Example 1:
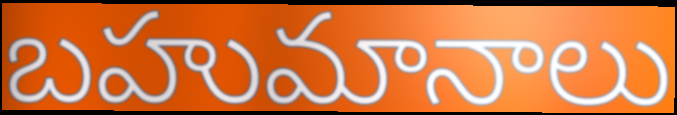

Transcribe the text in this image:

బహుమానాలు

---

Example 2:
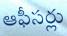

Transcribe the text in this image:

ఆఫీసర్లు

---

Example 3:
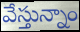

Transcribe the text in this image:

వేస్తున్నాం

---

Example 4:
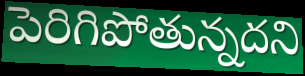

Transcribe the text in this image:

పెరిగిపోతున్నదని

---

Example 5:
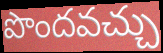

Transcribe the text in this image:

పొందవచ్చు